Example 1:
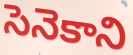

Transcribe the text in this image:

సెనెకాని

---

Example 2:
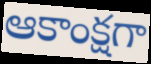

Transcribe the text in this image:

ఆకాంక్షగా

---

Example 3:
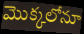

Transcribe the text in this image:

మొక్కలోనూ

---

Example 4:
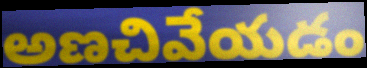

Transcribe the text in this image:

అణచివేయడం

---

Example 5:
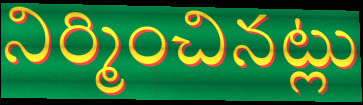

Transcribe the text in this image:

నిర్మించినట్లు